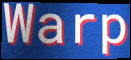
Warp